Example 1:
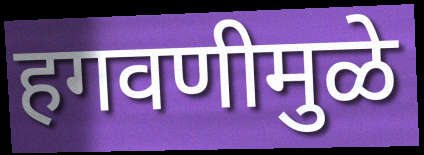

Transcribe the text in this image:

हगवणीमुळे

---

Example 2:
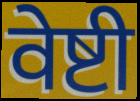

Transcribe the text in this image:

वेष्टी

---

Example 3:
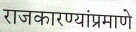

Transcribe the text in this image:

राजकारण्यांप्रमाणे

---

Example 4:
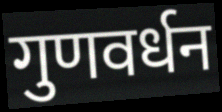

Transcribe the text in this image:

गुणवर्धन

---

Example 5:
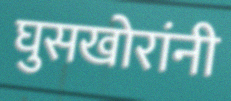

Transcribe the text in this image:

घुसखोरांनी